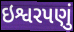
ઇશ્વરપણું